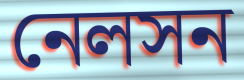
নেলসন